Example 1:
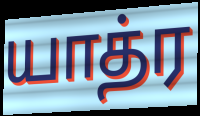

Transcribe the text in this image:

யாத்ர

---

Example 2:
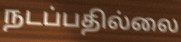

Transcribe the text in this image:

நடப்பதில்லை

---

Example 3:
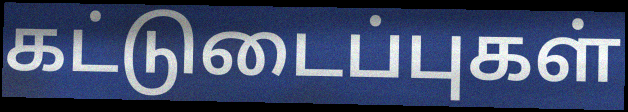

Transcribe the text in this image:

கட்டுடைப்புகள்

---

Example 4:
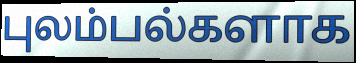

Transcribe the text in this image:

புலம்பல்களாக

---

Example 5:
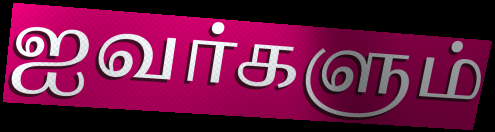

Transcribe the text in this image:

ஐவர்களும்